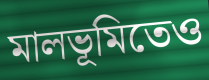
মালভূমিতেও